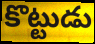
కొట్టుడు